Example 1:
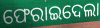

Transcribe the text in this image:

ଫେରାଇଦେଲା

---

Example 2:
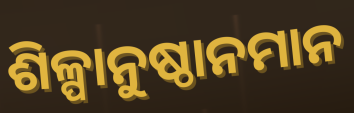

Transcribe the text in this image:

ଶିଳ୍ପାନୁଷ୍ଠାନମାନ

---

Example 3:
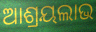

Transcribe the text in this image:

ଆଶ୍ରୟଲାଭ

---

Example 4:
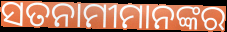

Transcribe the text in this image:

ସତନାମୀମାନଙ୍କର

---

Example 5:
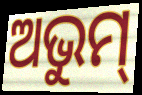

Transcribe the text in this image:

ଅଭୁମ୍